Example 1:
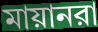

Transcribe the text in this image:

মায়ানরা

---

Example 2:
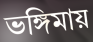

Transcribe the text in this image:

ভঙ্গিমায়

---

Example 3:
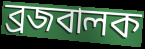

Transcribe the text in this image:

ব্রজবালক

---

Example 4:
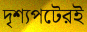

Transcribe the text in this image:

দৃশ্যপটেরই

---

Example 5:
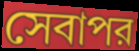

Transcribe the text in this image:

সেবাপর